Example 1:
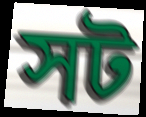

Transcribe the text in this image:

সট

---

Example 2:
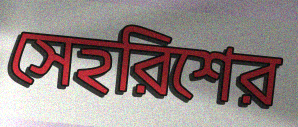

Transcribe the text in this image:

সেহরিশের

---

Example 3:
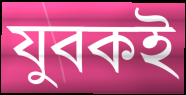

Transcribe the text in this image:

যুবকই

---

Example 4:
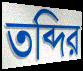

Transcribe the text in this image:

তব্দির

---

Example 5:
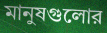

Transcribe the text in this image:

মানুষগুলোর